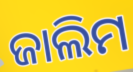
ଜାଲିମ